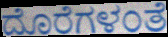
ದೊರೆಗಳಂತೆ